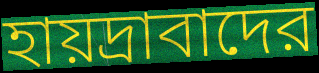
হায়দ্রাবাদের